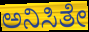
ಅನಿಸಿತೇ